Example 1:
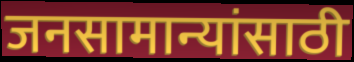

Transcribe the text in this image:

जनसामान्यांसाठी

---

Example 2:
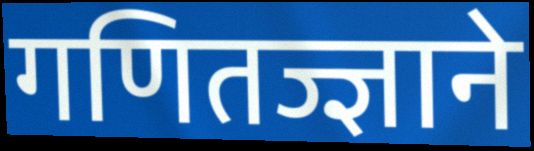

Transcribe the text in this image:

गणितज्ज्ञाने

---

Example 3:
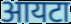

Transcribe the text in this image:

आयटा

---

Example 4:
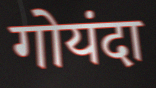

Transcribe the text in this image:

गोयंदा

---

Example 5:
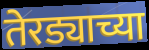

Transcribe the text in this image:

तेरड्याच्या